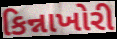
કિન્નાખોરી